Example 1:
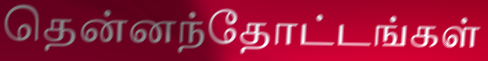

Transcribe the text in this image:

தென்னந்தோட்டங்கள்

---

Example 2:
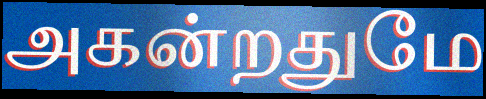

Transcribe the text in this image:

அகன்றதுமே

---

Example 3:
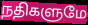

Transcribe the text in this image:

நதிகளுமே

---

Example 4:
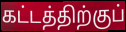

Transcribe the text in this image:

கட்டத்திற்குப்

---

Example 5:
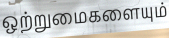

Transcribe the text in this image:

ஒற்றுமைகளையும்